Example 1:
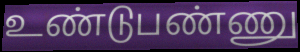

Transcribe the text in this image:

உண்டுபண்ணு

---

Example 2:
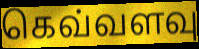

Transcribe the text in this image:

கெவ்வளவு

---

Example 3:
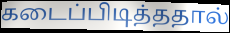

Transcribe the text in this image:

கடைப்பிடித்ததால்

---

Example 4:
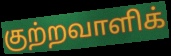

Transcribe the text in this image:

குற்றவாளிக்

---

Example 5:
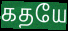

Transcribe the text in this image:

கதயே